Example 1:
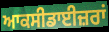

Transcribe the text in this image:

ਆਕਸੀਡਾਈਜ਼ਰਾਂ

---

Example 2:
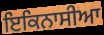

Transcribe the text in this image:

ਇਕਿਨਾਸੀਆ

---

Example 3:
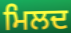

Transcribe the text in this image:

ਮਿਲਦ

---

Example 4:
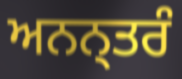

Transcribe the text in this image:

ਅਨਨ੍ਤਰੰ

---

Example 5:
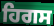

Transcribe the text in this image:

ਹਿਗਸ